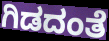
ಗಿಡದಂತೆ